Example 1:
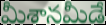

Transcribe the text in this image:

మీశానమీడే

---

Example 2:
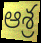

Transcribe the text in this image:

ఆశ్ర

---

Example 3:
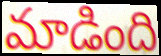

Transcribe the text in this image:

మాడింది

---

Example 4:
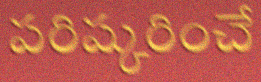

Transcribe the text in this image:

పరిష్కరించే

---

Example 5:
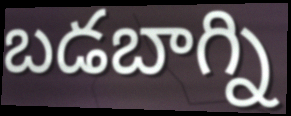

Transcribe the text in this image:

బడబాగ్ని